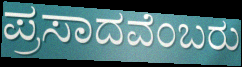
ಪ್ರಸಾದವೆಂಬರು